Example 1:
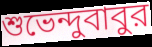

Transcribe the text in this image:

শুভেন্দুবাবুর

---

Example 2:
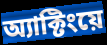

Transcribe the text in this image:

অ্যাক্টিংয়ে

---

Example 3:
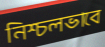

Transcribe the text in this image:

নিশ্চলভাবে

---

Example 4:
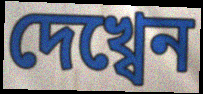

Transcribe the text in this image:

দেখ্বেন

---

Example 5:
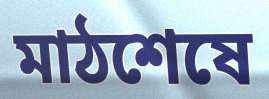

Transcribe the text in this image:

মাঠশেষে